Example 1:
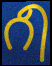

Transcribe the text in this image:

റീ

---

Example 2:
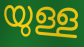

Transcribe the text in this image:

യുള്ള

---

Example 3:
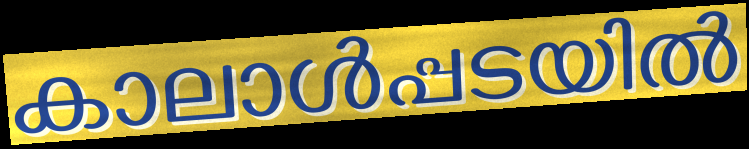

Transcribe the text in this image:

കാലാൾപ്പടയിൽ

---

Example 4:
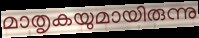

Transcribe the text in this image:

മാതൃകയുമായിരുന്നു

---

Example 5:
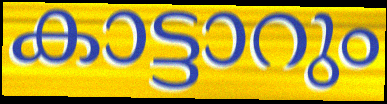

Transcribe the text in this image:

കാട്ടാറും